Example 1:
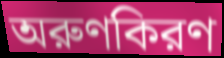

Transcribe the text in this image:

অরুণকিরণ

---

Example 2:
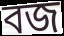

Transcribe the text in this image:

বজ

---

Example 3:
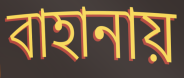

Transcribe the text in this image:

বাহানায়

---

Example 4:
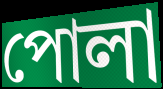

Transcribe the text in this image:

পোলা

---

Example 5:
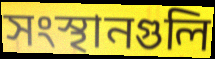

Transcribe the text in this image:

সংস্থানগুলি